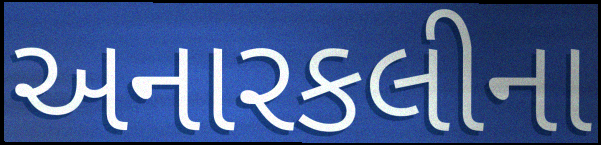
અનારકલીના